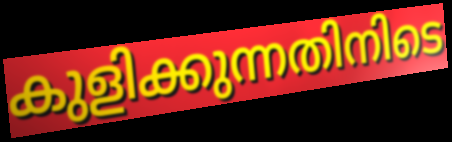
കുളിക്കുന്നതിനിടെ